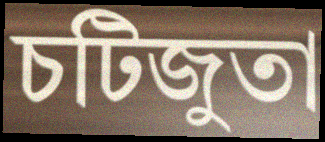
চটিজুতা